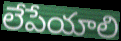
లేపేయాలి